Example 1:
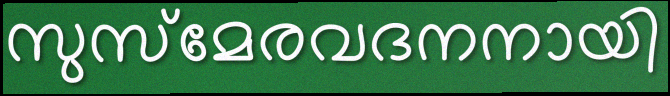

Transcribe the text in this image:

സുസ്മേരവദനനായി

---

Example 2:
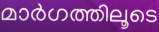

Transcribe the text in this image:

മാർഗത്തിലൂടെ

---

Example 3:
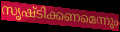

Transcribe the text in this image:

സൃഷ്ടിക്കണമെന്നും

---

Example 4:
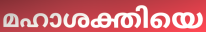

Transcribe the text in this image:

മഹാശക്തിയെ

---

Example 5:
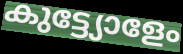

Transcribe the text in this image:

കുട്ട്യോളേം